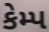
કેમ્પ